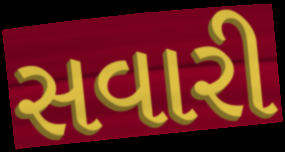
સવારી